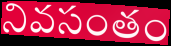
నివసంతం